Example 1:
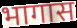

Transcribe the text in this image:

भागास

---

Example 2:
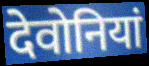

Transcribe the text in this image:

देवोनियां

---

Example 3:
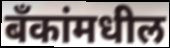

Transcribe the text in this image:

बँकांमधील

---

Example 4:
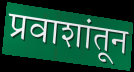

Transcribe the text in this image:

प्रवाशांतून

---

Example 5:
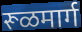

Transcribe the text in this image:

रूळमार्ग